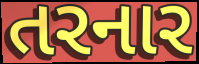
તરનાર